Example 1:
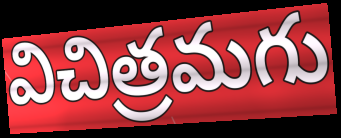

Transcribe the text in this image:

విచిత్రమగు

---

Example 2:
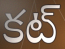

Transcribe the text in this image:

కట్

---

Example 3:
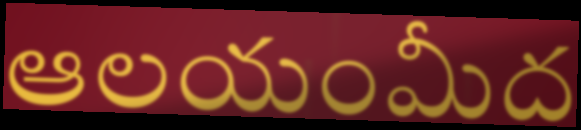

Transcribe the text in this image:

ఆలయంమీద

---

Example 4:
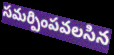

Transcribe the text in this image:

సమర్పింపవలసిన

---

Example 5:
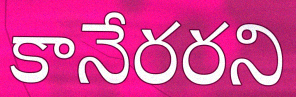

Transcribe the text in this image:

కానేరరని